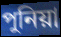
পুনিয়া